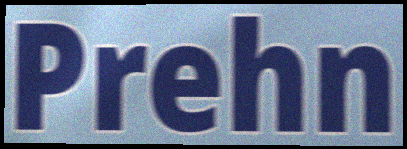
Prehn